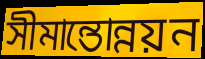
সীমান্তোন্নয়ন